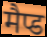
मैप्ड